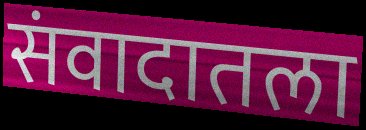
संवादातला